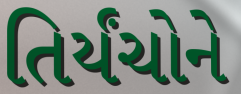
તિર્યંચોને